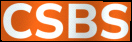
CSBS